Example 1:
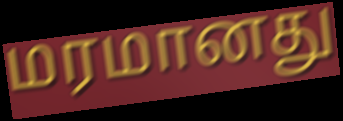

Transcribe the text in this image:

மரமானது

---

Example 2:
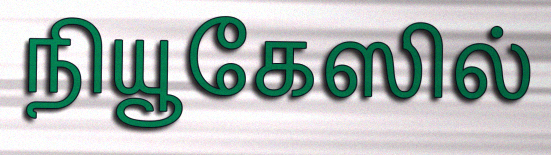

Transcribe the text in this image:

நியூகேஸில்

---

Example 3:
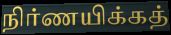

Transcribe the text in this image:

நிர்ணயிக்கத்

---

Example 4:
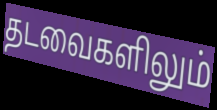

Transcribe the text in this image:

தடவைகளிலும்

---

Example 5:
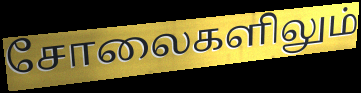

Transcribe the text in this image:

சோலைகளிலும்